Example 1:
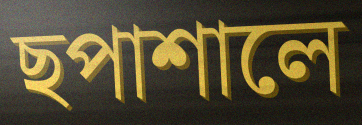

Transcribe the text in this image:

ছপাশালে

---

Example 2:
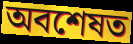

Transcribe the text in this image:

অবশেষত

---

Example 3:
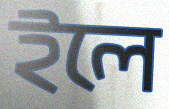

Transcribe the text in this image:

ইলে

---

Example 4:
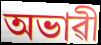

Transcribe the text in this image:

অভাৱী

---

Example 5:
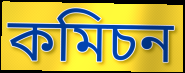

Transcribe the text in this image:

কমিচন